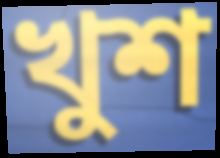
খুশ